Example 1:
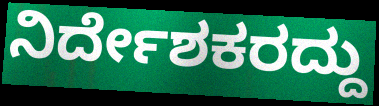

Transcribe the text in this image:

ನಿರ್ದೇಶಕರದ್ದು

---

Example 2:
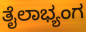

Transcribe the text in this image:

ತೈಲಾಭ್ಯಂಗ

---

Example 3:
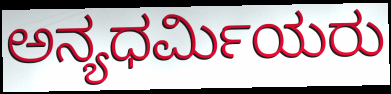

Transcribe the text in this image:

ಅನ್ಯಧರ್ಮಿಯರು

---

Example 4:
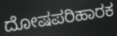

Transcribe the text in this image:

ದೋಷಪರಿಹಾರಕ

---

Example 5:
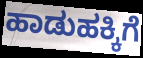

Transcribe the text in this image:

ಹಾಡುಹಕ್ಕಿಗೆ